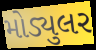
મોડ્યુલર